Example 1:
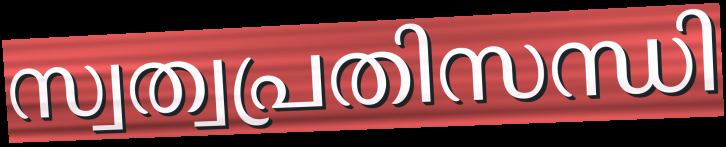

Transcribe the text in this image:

സ്വത്വപ്രതിസന്ധി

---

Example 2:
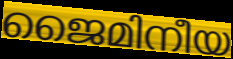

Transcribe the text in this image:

ജൈമിനീയ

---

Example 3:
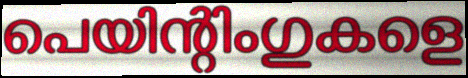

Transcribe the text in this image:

പെയിന്റിംഗുകളെ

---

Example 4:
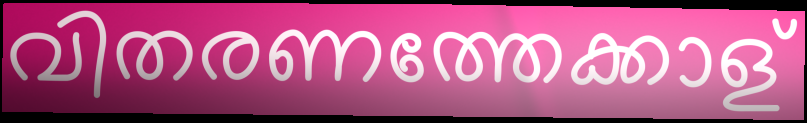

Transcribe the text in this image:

വിതരണത്തേക്കാള്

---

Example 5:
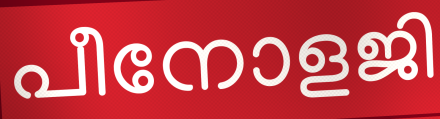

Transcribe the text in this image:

പീനോളജി